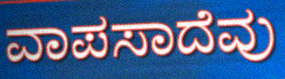
ವಾಪಸಾದೆವು